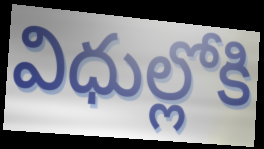
విధుల్లోకి